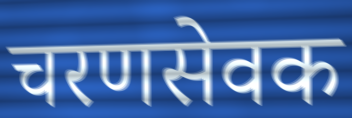
चरणसेवक